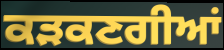
ਕੜਕਣਗੀਆਂ